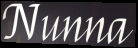
Nunna